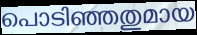
പൊടിഞ്ഞതുമായ